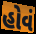
હોવં